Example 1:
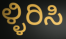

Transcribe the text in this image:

ಳ್ಳಿರಿಸಿ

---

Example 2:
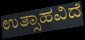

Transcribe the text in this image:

ಉತ್ಸಾಹವಿದೆ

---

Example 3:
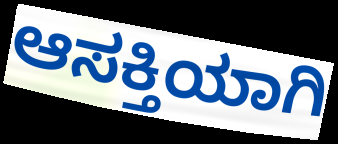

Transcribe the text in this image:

ಆಸಕ್ತಿಯಾಗಿ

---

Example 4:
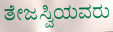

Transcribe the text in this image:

ತೇಜಸ್ವಿಯವರು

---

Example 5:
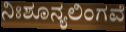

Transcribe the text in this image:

ನಿಃಶೂನ್ಯಲಿಂಗವೆ